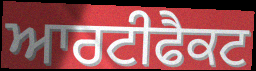
ਆਰਟੀਫੈਕਟ